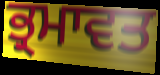
ਭ੍ਰਮਾਵਤ